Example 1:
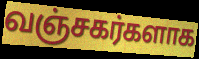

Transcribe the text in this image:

வஞ்சகர்களாக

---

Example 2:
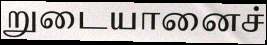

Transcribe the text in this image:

றுடையானைச்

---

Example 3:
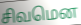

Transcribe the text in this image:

சிவமென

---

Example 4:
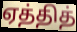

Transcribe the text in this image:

ஏத்தித்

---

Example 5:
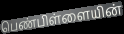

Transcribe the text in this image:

பெண்பிள்ளையின்